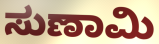
ಸುಣಾಮಿ